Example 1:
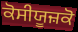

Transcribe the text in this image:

ਕੋਸੀਯੂਜ਼ਕੋ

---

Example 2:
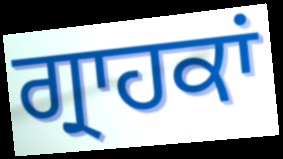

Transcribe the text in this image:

ਗ੍ਰਾਹਕਾਂ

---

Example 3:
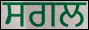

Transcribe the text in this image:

ਸਗਲ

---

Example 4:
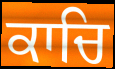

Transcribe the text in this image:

ਕਾਚਿ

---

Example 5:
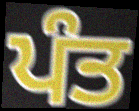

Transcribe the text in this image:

ਪੰਤ